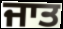
ਜਾਤ